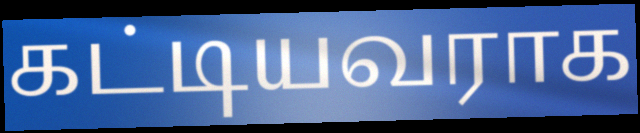
கட்டியவராக